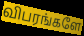
விபரங்களே